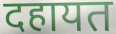
दहायत